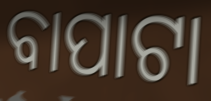
ବାପାଟା